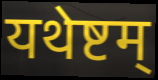
यथेष्टम्